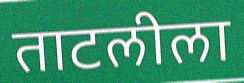
ताटलीला